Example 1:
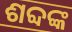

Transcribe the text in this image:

ଶବ୍ଦଙ୍କ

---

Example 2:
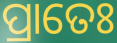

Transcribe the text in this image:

ପ୍ରାତେଃ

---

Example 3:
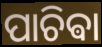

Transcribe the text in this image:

ପାଚିଵା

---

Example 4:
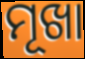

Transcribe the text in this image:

ମୂଖା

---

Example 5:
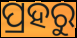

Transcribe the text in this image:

ପ୍ରହରୁ